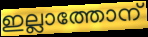
ഇല്ലാത്തോന്